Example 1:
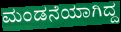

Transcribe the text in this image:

ಮಂಡನೆಯಾಗಿದ್ದ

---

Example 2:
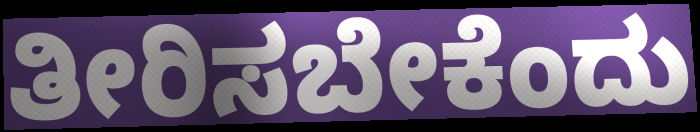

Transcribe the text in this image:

ತೀರಿಸಬೇಕೆಂದು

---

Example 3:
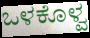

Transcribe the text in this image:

ಒಳಕೊಳ್ವ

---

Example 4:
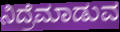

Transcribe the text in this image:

ನಿದ್ರೆಮಾಡುವ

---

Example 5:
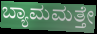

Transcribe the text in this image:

ಬ್ಯಾಮಮತ್ತೇ